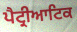
ਪੈਟ੍ਰੀਆਟਿਕ